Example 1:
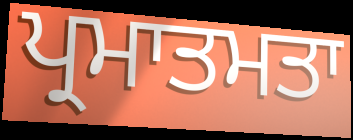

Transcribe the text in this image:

ਪ੍ਰਮਾਤਮਤਾ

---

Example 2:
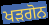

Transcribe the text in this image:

ਖੜਗੋਨ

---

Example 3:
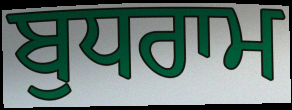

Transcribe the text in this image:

ਬੁਧਰਾਮ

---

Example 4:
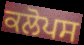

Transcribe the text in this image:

ਕਲੋਪਸ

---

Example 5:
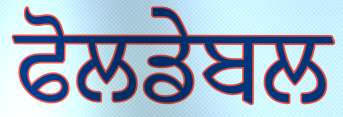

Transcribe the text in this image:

ਫੋਲਡੇਬਲ